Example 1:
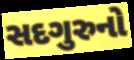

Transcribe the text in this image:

સદગુરુનો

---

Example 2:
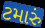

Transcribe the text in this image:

ટમારું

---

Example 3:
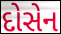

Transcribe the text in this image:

દોસેન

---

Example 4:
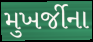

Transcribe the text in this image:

મુખર્જીના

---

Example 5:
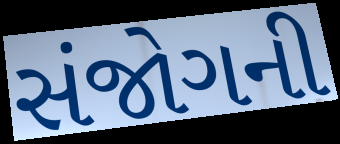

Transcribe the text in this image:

સંજોગની